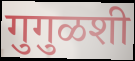
गुगुळशी